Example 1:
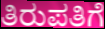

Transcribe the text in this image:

ತಿರುಪತಿಗೆ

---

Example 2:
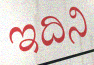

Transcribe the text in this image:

ಇದಿನಿ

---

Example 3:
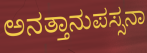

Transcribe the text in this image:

ಅನತ್ತಾನುಪಸ್ಸನಾ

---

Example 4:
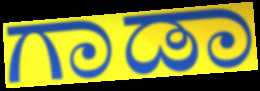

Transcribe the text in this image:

ಗಾಡಾ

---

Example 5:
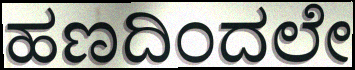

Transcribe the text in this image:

ಹಣದಿಂದಲೇ